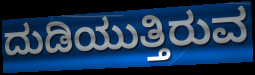
ದುಡಿಯುತ್ತಿರುವ